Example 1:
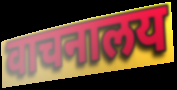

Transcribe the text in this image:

वाचनालय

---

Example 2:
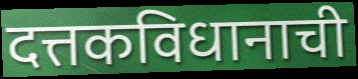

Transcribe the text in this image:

दत्तकविधानाची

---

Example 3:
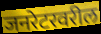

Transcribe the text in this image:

जनरेटरवरील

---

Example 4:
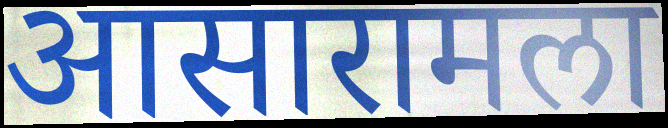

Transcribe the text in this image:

आसारामला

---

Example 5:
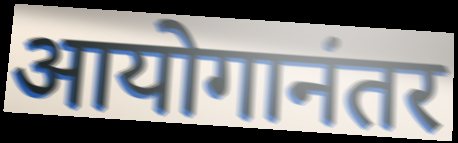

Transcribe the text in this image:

आयोगानंतर